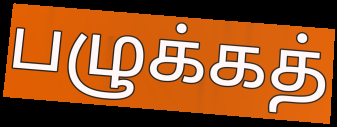
பழுக்கத்